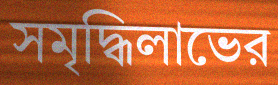
সমৃদ্ধিলাভের